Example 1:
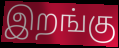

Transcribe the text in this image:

இறங்கு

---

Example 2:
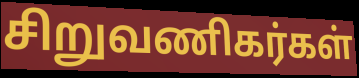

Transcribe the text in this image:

சிறுவணிகர்கள்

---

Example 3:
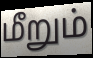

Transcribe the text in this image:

மீறும்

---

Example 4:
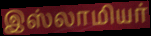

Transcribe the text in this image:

இஸ்லாமியர்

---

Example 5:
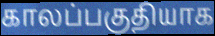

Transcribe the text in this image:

காலப்பகுதியாக